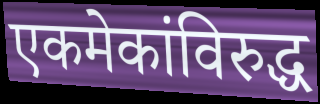
एकमेकांविरुद्ध